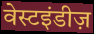
वेस्टइंडीज़